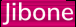
Jibone